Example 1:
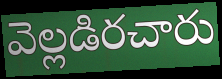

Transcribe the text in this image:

వెల్లడిరచారు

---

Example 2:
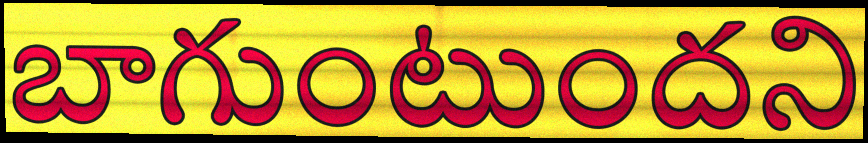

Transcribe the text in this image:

బాగుంటుందని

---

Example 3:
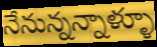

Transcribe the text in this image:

నేనున్నన్నాళ్ళూ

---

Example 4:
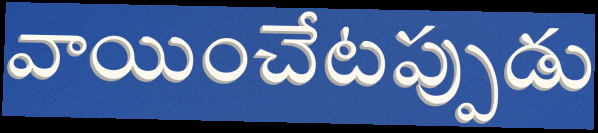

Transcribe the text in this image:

వాయించేటప్పుడు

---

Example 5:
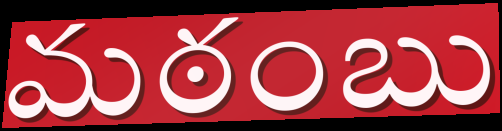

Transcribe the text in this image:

మఠంబు